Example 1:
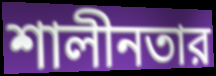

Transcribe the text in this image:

শালীনতার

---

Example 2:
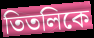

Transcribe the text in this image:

তিতলিকে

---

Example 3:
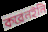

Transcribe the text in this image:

করেনইনি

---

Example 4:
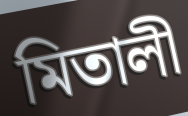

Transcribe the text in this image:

মিতালী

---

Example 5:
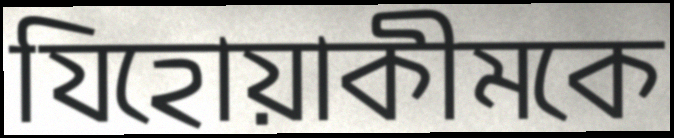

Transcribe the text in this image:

যিহোয়াকীমকে